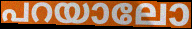
പറയാലോ